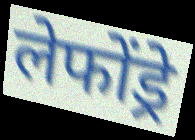
लेफोंड्रे